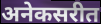
अनेकसरीत